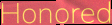
Honored